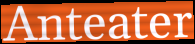
Anteater